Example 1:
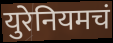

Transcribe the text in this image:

युरेनियमचं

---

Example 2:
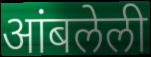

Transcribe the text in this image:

आंबलेली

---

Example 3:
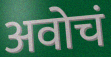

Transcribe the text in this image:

अवोचं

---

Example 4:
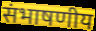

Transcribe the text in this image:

संभाषणीय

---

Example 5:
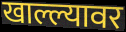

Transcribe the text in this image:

खाल्ल्यावर